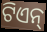
ଟିଏନ୍